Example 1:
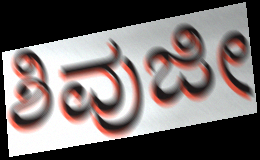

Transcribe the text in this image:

ಶಿವುಜೀ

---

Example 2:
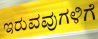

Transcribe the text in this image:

ಇರುವವುಗಳಿಗೆ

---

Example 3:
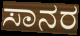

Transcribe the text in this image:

ಸಾನರ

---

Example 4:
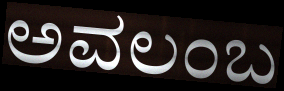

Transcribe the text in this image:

ಅವಲಂಬ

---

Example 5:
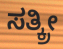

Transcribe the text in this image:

ಸತ್ಕ್ರೀ